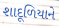
શાદૂળિયાને